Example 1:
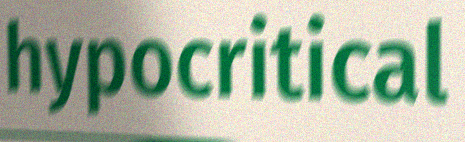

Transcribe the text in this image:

hypocritical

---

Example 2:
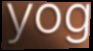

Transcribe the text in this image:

yog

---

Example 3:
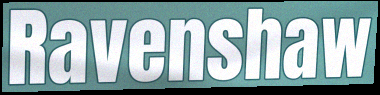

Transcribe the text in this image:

Ravenshaw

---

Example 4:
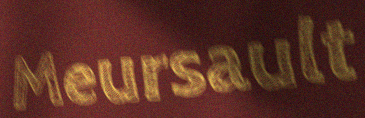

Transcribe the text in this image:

Meursault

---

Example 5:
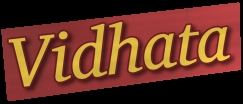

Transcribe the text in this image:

Vidhata